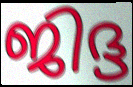
ജിദ്ദ